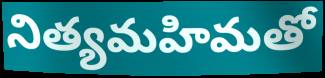
నిత్యమహిమతో